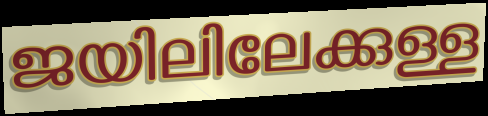
ജയിലിലേക്കുള്ള